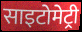
साइटोमेट्री